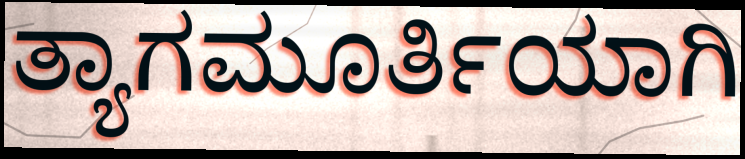
ತ್ಯಾಗಮೂರ್ತಿಯಾಗಿ